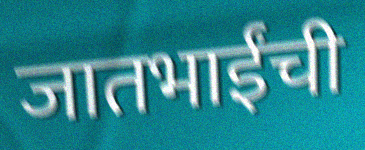
जातभाईंची